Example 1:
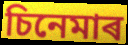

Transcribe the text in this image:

চিনেমাৰ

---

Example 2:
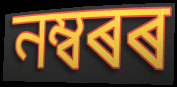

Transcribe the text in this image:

নম্বৰৰ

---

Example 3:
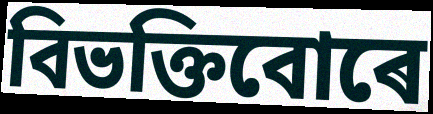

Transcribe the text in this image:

বিভক্তিবোৰে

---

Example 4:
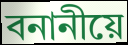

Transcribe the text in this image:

বনানীয়ে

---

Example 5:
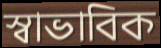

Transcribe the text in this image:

স্বাভাবিক